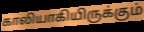
காலியாகியிருக்கும்